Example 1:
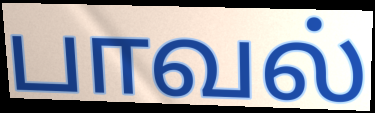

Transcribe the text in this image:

பாவல்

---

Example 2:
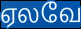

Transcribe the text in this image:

ஏலவே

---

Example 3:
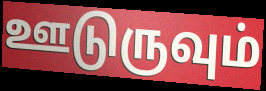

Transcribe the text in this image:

ஊடுருவும்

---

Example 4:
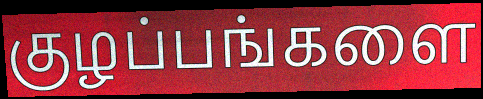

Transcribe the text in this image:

குழப்பங்களை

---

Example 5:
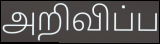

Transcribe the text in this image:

அறிவிப்ப